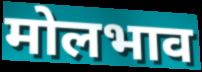
मोलभाव